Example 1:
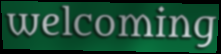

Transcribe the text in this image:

welcoming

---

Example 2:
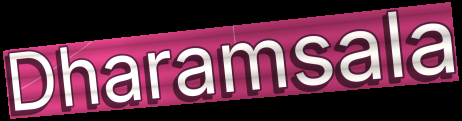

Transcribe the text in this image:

Dharamsala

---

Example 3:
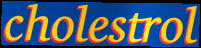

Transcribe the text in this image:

cholestrol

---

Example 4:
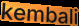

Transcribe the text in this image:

kembali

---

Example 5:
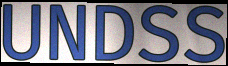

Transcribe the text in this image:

UNDSS